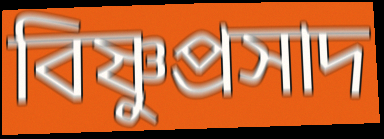
বিষ্ণুপ্ৰসাদ